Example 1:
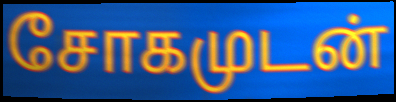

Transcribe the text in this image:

சோகமுடன்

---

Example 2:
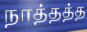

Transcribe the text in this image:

நாத்தத்த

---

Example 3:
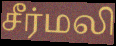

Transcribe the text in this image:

சீர்மலி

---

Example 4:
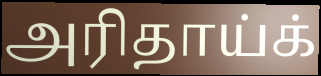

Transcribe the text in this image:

அரிதாய்க்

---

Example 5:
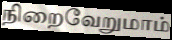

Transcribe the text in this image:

நிறைவேறுமாம்